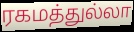
ரகமத்துல்லா